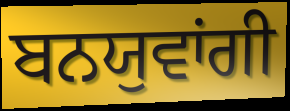
ਬਨਯੁਵਾਂਗੀ